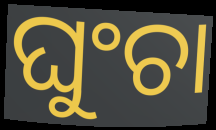
ଘୁଂଚା